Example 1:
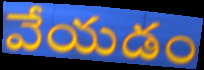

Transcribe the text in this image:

వేయడం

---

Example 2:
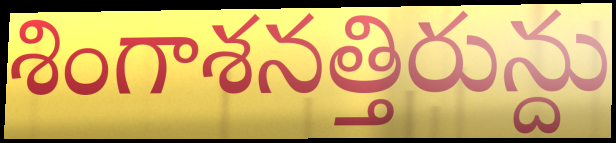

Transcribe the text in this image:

శింగాశనత్తిరున్దు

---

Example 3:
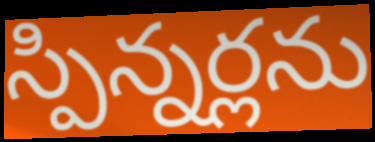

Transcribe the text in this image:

స్పిన్నర్లను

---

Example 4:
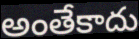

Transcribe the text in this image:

అంతేకాదు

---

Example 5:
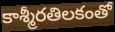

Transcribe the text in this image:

కాశ్మీరతిలకంతో